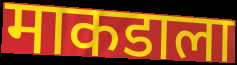
माकडाला